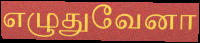
எழுதுவேனா